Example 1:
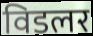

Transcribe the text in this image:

विडलर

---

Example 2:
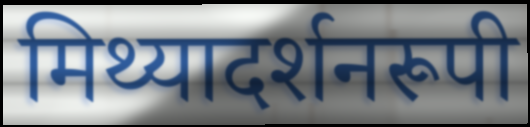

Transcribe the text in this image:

मिथ्यादर्शनरूपी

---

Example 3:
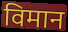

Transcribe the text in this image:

विमान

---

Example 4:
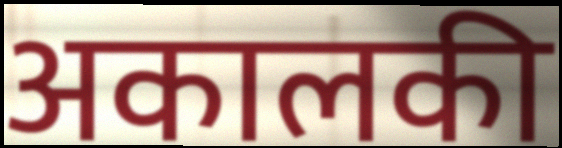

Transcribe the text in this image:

अकालकी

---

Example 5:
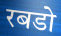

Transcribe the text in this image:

रबडो